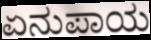
ಏನುಪಾಯ